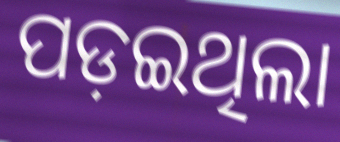
ପଡ଼ଇଥିଲା